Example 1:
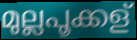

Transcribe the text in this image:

മുല്ലപൂക്കള്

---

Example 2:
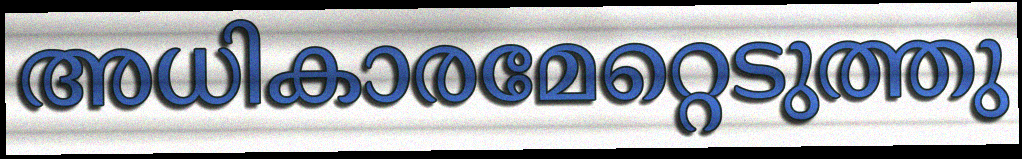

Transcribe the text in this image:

അധികാരമേറ്റെടുത്തു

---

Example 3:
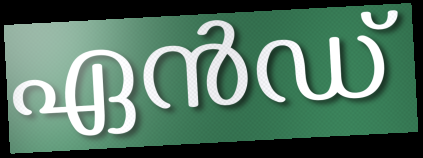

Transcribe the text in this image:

ഏൻഡ്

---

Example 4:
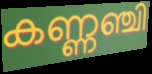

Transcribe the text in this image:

കണ്ണഞ്ചി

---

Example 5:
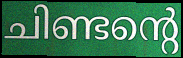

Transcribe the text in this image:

ചിണ്ടന്റെ